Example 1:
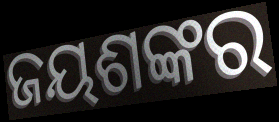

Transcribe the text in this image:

ଜୟଶଙ୍କର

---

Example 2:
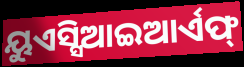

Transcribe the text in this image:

ୟୁଏସ୍ସିଆଇଆର୍ଏଫ୍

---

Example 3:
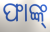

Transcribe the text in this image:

ଫାଙ୍କ୍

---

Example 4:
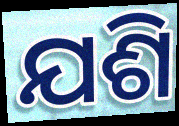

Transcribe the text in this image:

ଯଶି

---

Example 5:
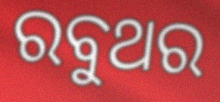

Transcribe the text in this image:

ରବୁଥର